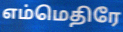
எம்மெதிரே